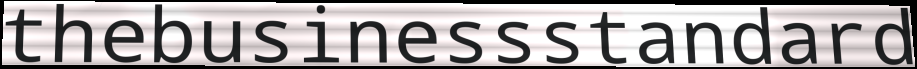
thebusinessstandard